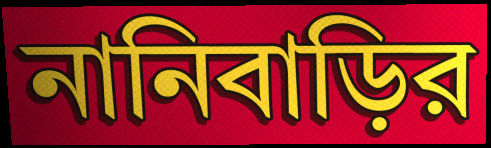
নানিবাড়ির